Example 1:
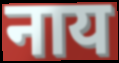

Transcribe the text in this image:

नाय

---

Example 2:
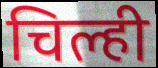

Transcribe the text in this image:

चिल्ही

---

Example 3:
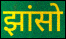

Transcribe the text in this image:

झांसो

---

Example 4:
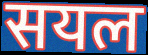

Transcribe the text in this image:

सयल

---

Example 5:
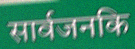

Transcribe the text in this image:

सार्वजनकि